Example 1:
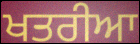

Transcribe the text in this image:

ਖਤਰੀਆ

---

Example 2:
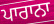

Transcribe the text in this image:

ਪਾਰਾਨਾ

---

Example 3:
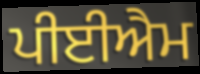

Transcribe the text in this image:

ਪੀਈਐਮ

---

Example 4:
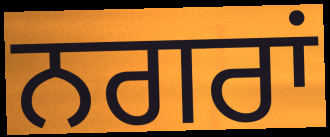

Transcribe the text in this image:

ਨਗਰਾਂ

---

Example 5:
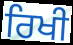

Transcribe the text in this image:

ਰਿਖੀ